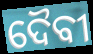
ଦୈବୀ